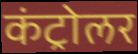
कंट्रोलर